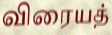
விரையத்